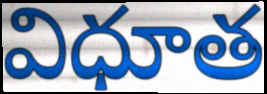
విధూత